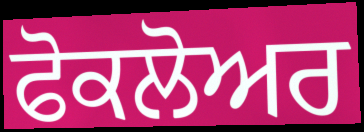
ਫੋਕਲੋਅਰ